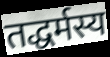
तद्धर्मस्य